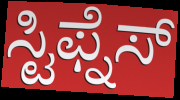
ಸ್ಟಿಫ್ನೆಸ್